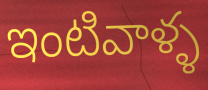
ఇంటివాళ్ళ